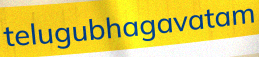
telugubhagavatam